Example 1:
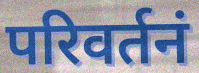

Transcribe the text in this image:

परिवर्तनं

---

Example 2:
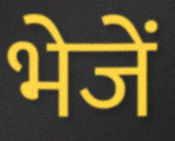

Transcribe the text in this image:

भेजें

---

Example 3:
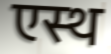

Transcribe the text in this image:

एस्थ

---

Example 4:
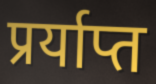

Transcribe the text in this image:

प्रर्याप्त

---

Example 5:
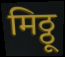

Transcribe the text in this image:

मिठ्ठू